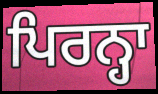
ਪਿਰਨ੍ਹਾ